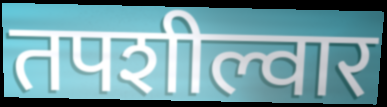
तपशील्वार